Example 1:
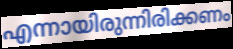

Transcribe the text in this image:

എന്നായിരുന്നിരിക്കണം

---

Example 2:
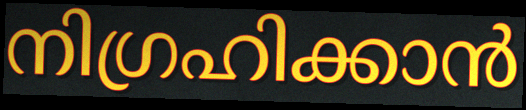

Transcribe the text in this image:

നിഗ്രഹിക്കാൻ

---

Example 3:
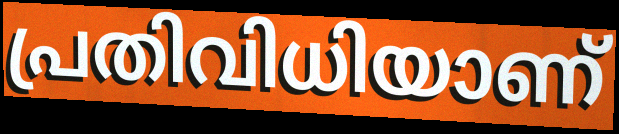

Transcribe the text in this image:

പ്രതിവിധിയാണ്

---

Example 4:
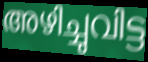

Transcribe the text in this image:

അഴിച്ചുവിട്ട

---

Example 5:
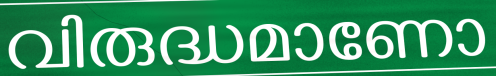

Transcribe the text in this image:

വിരുദ്ധമാണോ